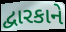
દ્વારકાને